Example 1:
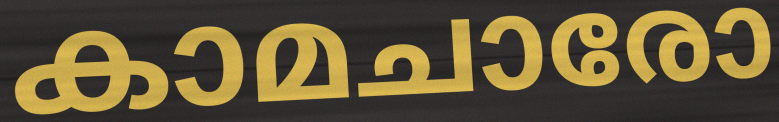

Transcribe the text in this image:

കാമചാരോ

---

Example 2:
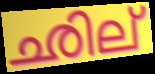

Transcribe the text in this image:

ഛില്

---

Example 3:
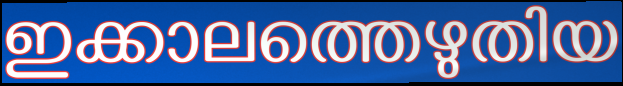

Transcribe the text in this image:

ഇക്കാലത്തെഴുതിയ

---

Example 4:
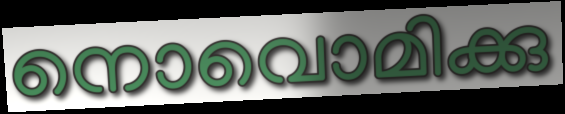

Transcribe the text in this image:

നൊവൊമിക്കു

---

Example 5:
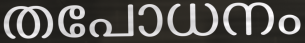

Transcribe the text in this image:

തപോധനം